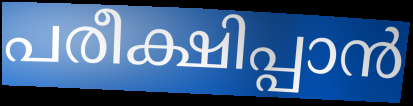
പരീക്ഷിപ്പാൻ